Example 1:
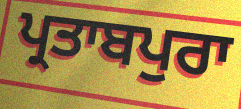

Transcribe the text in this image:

ਪ੍ਰਤਾਬਪੁਰਾ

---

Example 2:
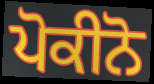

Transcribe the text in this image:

ਪੋਕੀਨੋ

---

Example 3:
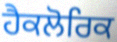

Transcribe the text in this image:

ਹੈਕਲੋਰਿਕ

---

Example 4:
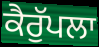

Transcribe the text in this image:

ਕੈਰੁੱਪਲਾ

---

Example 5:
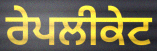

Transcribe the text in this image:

ਰੇਪਲੀਕੇਟ